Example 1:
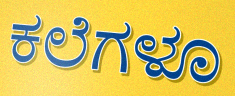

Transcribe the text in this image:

ಕಲೆಗಳೂ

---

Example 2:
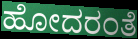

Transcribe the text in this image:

ಹೋದರಂತೆ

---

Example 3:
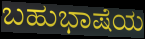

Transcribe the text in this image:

ಬಹುಭಾಷೆಯ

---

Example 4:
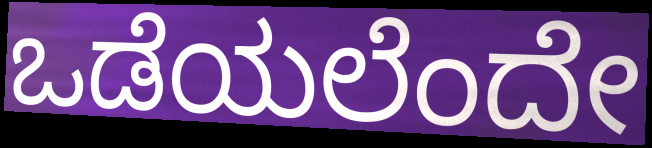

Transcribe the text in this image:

ಒಡೆಯಲೆಂದೇ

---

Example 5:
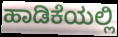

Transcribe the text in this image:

ಹಾಡಿಕೆಯಲ್ಲಿ